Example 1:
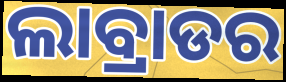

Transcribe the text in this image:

ଲାବ୍ରାଡର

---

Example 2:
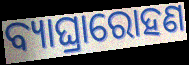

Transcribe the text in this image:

ବ୍ୟାଘ୍ରାରୋହଣ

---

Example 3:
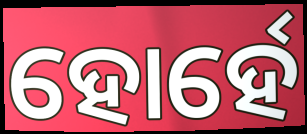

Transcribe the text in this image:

ହୋର୍ହେ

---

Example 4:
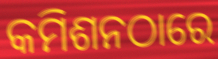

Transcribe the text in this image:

କମିଶନଠାରେ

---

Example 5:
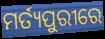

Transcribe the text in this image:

ମର୍ତ୍ୟପୁରୀରେ